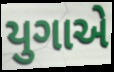
યુગાએ